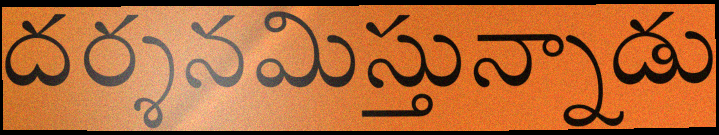
దర్శనమిస్తున్నాడు